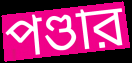
পণ্ডার